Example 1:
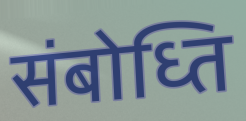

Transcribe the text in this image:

संबोध्ति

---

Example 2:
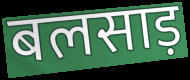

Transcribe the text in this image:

बलसाड़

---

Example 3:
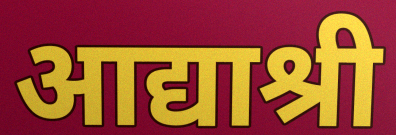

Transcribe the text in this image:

आद्याश्री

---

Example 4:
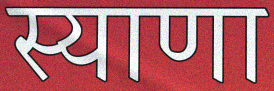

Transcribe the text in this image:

स्याणा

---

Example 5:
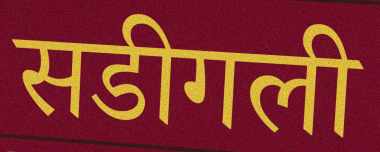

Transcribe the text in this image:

सडीगली